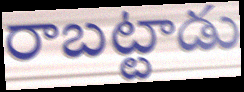
రాబట్టాడు